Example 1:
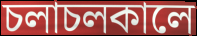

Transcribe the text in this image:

চলাচলকালে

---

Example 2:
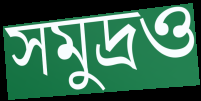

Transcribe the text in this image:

সমুদ্রও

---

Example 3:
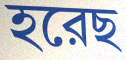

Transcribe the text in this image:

হরেছ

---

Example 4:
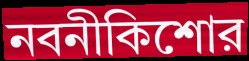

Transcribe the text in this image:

নবনীকিশোর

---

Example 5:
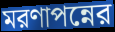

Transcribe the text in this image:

মরণাপন্নের